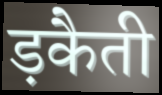
ड़कैती